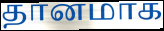
தானமாக